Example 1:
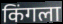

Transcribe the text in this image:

किंगला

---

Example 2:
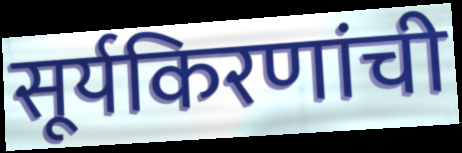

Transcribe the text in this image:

सूर्यकिरणांची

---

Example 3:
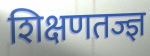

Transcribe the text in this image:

शिक्षणतज्ज्ञ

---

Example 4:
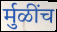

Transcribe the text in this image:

र्मुळींच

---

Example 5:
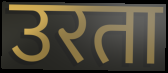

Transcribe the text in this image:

उरता